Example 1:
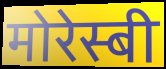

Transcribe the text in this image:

मोरेस्बी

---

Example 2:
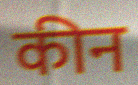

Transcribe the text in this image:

कीन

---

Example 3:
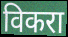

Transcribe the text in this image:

विकरा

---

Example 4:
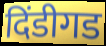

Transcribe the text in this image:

दिंडीगड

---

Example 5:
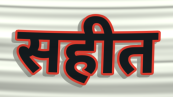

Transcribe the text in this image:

सहीत